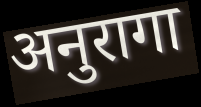
अनुरागा